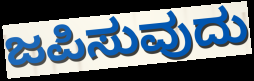
ಜಪಿಸುವುದು